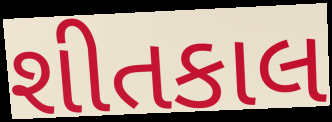
શીતકાલ